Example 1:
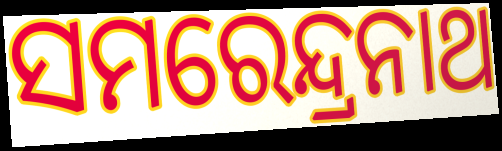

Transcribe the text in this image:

ସମରେନ୍ଦ୍ରନାଥ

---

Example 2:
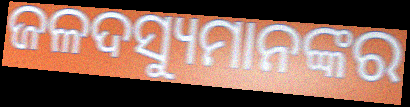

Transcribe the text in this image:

ଜଳଦସ୍ୟୁମାନଙ୍କର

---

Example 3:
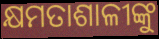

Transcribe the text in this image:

କ୍ଷମତାଶାଳୀଙ୍କୁ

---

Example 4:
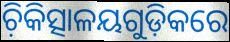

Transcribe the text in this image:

ଚ଼ିକିତ୍ସାଳୟଗୁଡ଼ିକରେ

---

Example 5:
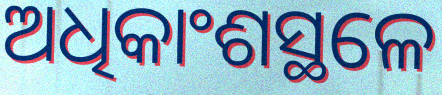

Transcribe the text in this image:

ଅଧିକାଂଶସ୍ଥଳେ